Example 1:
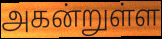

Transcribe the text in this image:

அகன்றுள்ள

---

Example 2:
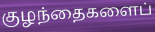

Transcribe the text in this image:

குழந்தைகளைப்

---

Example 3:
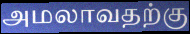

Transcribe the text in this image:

அமலாவதற்கு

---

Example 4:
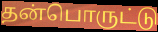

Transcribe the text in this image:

தன்பொருட்டு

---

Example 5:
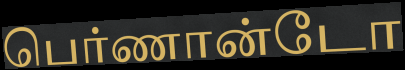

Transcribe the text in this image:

பெர்ணான்டோ